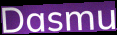
Dasmu